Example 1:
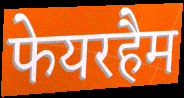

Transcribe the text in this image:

फेयरहैम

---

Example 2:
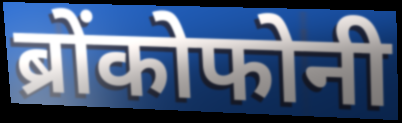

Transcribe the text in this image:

ब्रोंकोफोनी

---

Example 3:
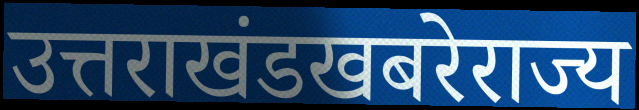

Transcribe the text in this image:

उत्तराखंडखबरेराज्य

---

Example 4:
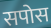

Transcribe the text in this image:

सपोस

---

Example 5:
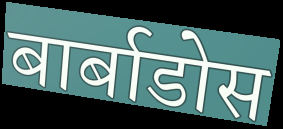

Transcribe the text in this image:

बार्बाडोस